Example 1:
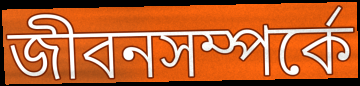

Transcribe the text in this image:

জীবনসম্পর্কে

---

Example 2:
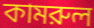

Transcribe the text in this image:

কামরুল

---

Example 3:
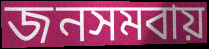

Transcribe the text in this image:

জনসমবায়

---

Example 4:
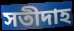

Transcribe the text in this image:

সতীদাহ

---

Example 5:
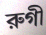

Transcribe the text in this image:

রুগী